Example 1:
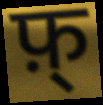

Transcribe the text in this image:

फ़्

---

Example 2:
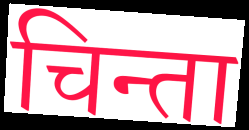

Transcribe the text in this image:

चिन्ता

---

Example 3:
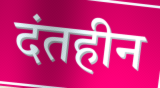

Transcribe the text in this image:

दंतहीन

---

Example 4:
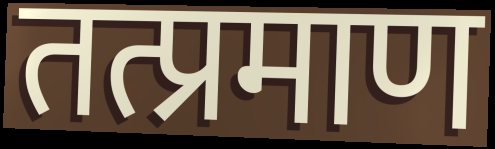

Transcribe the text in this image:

तत्प्रमाण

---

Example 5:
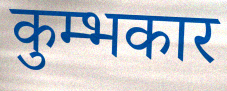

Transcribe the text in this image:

कुम्भकार